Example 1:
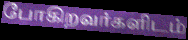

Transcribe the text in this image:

போகிறவர்களிடம்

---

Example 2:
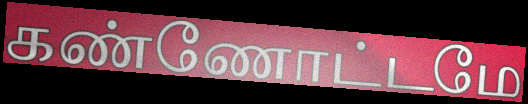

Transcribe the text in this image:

கண்ணோட்டமே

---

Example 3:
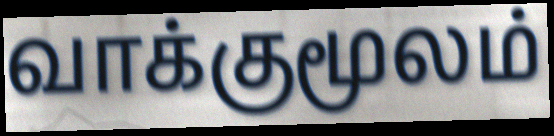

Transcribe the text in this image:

வாக்குமூலம்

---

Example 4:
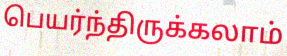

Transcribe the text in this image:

பெயர்ந்திருக்கலாம்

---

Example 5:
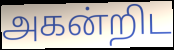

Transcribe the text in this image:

அகன்றிட